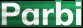
Parbi